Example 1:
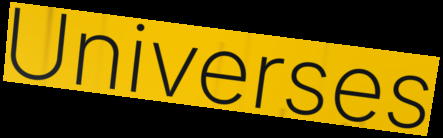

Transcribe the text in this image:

Universes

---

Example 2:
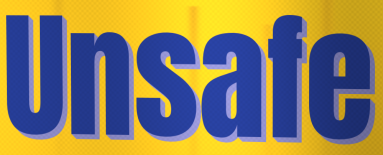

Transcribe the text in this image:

Unsafe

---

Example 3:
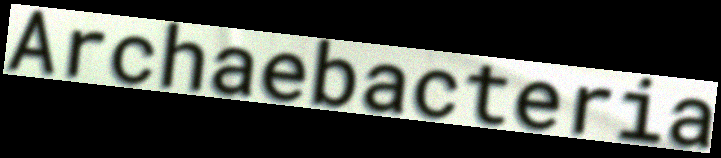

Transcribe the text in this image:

Archaebacteria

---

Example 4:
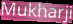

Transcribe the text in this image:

Mukharji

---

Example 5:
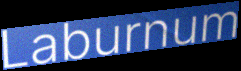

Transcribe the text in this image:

Laburnum